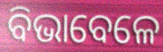
ବିଭାବେଳେ